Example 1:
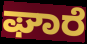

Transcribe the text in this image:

ಘಾರೆ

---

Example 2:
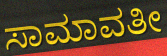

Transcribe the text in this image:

ಸಾಮಾವತೀ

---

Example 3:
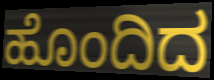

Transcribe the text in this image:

ಹೊಂದಿದ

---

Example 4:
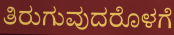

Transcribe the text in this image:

ತಿರುಗುವುದರೊಳಗೆ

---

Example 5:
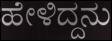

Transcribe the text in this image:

ಹೇಳಿದ್ದನು